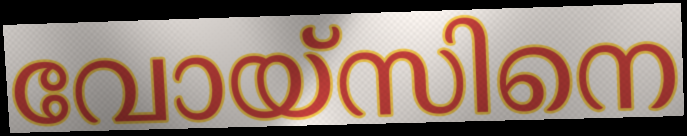
വോയ്സിനെ